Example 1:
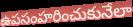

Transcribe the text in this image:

ఉపసంహరించుకునేలా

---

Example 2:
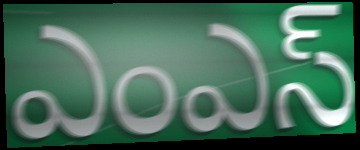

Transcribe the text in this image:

ఎంఎస్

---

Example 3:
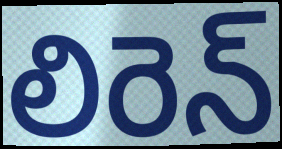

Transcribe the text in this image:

లిరెన్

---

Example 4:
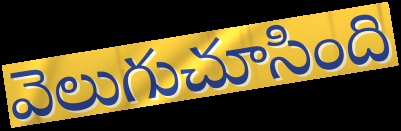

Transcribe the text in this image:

వెలుగుచూసింది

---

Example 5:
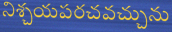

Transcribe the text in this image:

నిశ్చయపరచవచ్చును